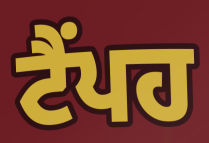
ਟੈਂਪਹ